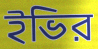
ইভির